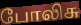
போலிசு